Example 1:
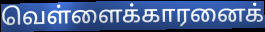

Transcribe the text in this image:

வெள்ளைக்காரனைக்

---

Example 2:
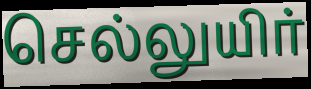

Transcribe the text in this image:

செல்லுயிர்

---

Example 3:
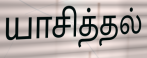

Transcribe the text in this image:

யாசித்தல்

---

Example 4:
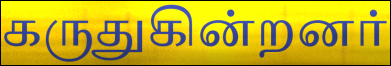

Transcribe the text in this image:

கருதுகின்றனர்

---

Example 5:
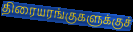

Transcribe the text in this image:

திரையரங்குகளுக்குச்